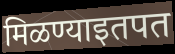
मिळण्याइतपत